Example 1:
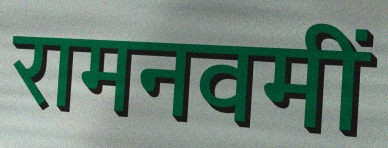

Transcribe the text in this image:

रामनवमीं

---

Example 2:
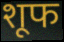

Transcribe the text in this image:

शूफ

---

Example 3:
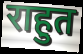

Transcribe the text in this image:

राहुत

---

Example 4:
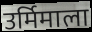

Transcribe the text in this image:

उर्मिमाला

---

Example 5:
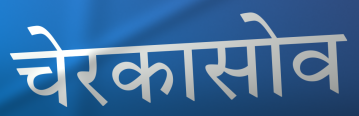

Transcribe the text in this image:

चेरकासोव